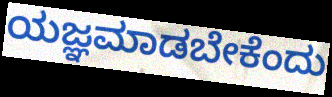
ಯಜ್ಞಮಾಡಬೇಕೆಂದು